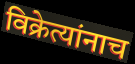
विक्रेत्यांनाच